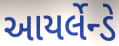
આયર્લેન્ડે